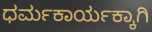
ಧರ್ಮಕಾರ್ಯಕ್ಕಾಗಿ